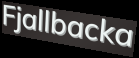
Fjallbacka